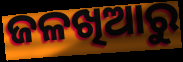
ଜଳଖିଆରୁ